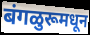
बंगळुरूमधून